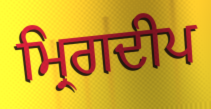
ਮ੍ਰਿਗਦੀਪ